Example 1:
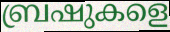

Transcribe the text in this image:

ബ്രഷുകളെ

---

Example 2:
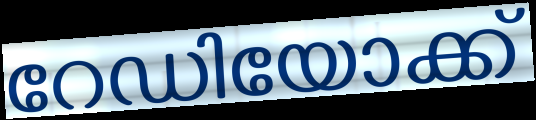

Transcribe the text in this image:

റേഡിയോക്ക്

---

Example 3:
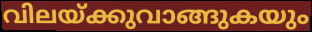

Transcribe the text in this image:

വിലയ്ക്കുവാങ്ങുകയും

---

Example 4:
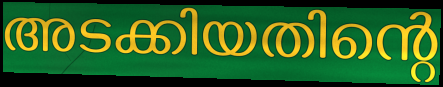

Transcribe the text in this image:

അടക്കിയതിന്റെ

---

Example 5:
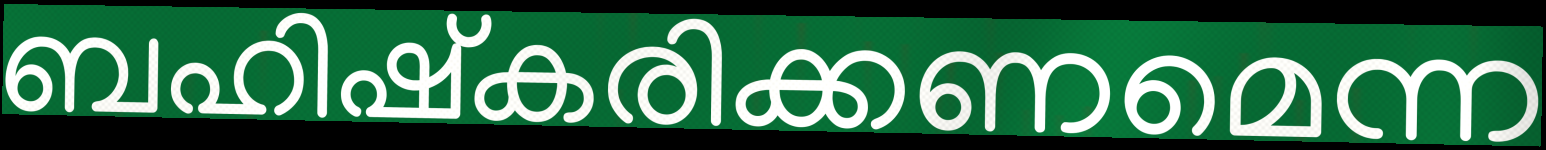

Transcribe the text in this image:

ബഹിഷ്കരിക്കണമെന്ന